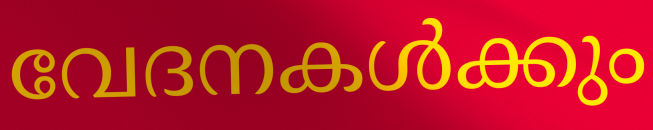
വേദനകൾക്കും